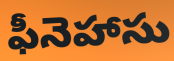
ఫీనెహాసు